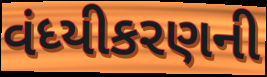
વંધ્યીકરણની